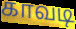
காவடி